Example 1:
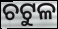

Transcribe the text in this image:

ଚଟୁଳ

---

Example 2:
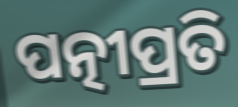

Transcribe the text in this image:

ପତ୍ନୀପ୍ରତି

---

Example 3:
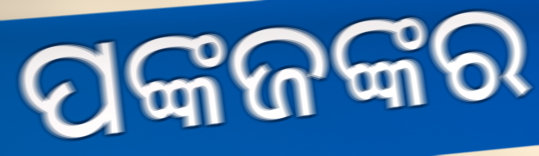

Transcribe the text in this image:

ପଙ୍କଜଙ୍କର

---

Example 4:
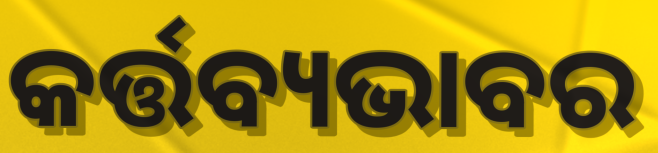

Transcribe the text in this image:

କର୍ତ୍ତବ୍ୟଭାବର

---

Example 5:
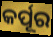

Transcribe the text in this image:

କର୍ପୂର